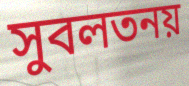
সুবলতনয়